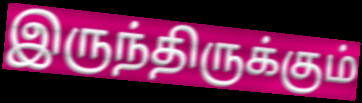
இருந்திருக்கும்